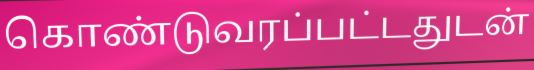
கொண்டுவரப்பட்டதுடன்